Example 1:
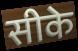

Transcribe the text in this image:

सीके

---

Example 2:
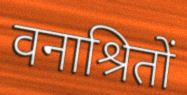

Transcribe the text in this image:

वनाश्रितों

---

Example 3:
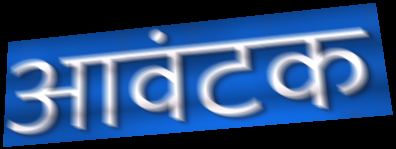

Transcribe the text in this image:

आवंटक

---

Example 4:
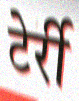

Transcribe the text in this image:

टेर्री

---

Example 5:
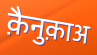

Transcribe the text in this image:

क़ैनुक़ाअ